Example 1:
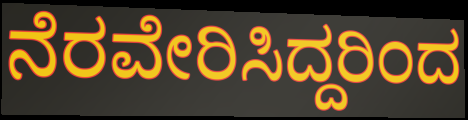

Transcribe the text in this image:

ನೆರವೇರಿಸಿದ್ದರಿಂದ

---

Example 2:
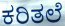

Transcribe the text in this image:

ಕರಿತಲೆ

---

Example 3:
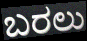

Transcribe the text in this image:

ಬರಲು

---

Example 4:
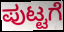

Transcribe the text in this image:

ಪುಟ್ಟಗೆ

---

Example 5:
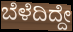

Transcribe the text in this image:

ಬೆಳೆದಿದ್ದೇ